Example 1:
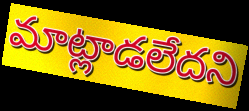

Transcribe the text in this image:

మాట్లాడలేదని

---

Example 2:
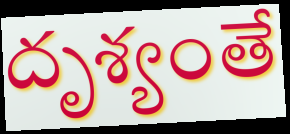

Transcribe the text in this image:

దృశ్యంతే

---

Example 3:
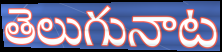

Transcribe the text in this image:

తెలుగునాట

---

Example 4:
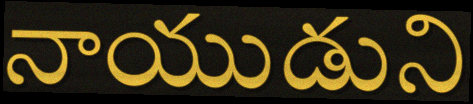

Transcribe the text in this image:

నాయుడుని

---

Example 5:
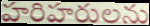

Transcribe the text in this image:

హరిహరులను